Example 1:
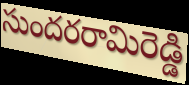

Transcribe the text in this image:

సుందరరామిరెడ్డి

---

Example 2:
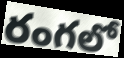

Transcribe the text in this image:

రంగలో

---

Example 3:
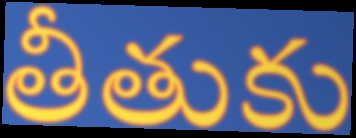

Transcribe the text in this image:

తీతుకు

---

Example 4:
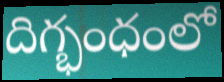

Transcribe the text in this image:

దిగ్భంధంలో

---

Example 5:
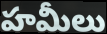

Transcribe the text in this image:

హమీలు